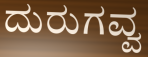
ದುರುಗವ್ವ